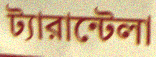
ট্যারান্টেলা